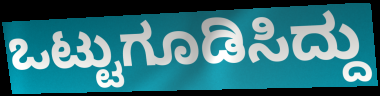
ಒಟ್ಟುಗೂಡಿಸಿದ್ದು